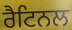
ਰੈਟਿਨਲ